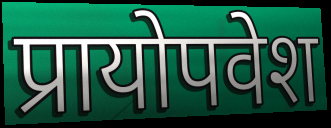
प्रायोपवेश